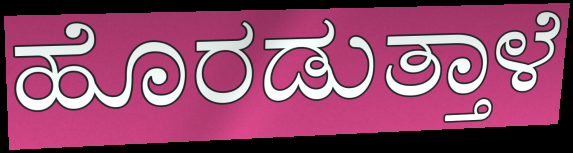
ಹೊರಡುತ್ತಾಳೆ